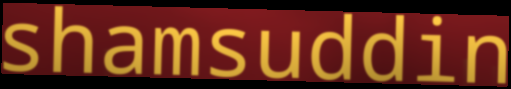
shamsuddin